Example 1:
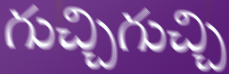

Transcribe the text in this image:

గుచ్చిగుచ్చి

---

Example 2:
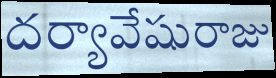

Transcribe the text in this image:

దర్యావేషురాజు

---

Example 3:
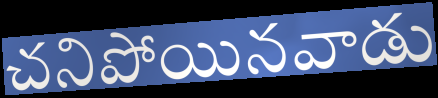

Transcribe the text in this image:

చనిపోయినవాడు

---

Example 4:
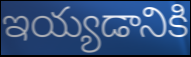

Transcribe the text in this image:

ఇయ్యడానికి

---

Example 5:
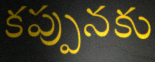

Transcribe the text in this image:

కప్పునకు